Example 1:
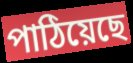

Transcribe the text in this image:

পাঠিয়েছে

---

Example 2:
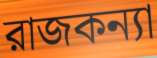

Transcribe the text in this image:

রাজকন্যা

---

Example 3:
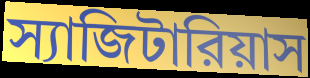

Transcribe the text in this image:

স্যাজিটারিয়াস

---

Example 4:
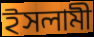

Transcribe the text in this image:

ইসলামী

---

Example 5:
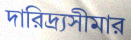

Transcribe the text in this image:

দারিদ্র্যসীমার